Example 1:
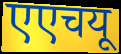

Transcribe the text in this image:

एएचयू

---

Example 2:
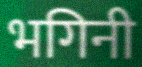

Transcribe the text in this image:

भगिनी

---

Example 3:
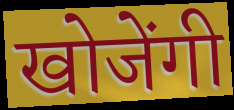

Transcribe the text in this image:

खोजेंगी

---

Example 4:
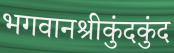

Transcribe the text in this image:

भगवानश्रीकुंदकुंद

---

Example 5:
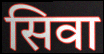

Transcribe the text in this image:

सिवा